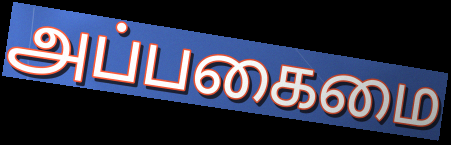
அப்பகைமை